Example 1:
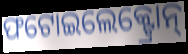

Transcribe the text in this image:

ଫଟୋଇଲେକ୍ଟ୍ରୋନ୍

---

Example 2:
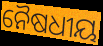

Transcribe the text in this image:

ନୈଷଧୀୟ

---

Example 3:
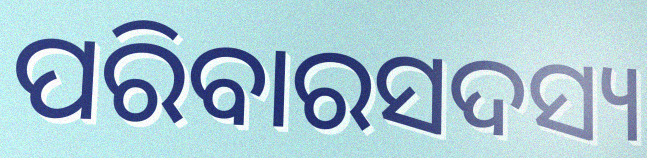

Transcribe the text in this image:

ପରିବାରସଦସ୍ୟ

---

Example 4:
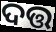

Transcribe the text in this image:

ଦତ୍ତ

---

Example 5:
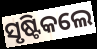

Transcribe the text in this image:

ସୃଷ୍ଟିକଲେ